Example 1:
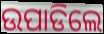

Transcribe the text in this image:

ଉପାଡିଲେ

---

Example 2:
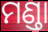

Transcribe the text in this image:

ମଣ୍ଡା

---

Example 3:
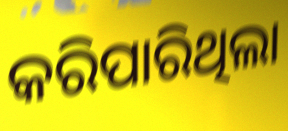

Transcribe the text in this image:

କରିପାରିଥିଲା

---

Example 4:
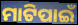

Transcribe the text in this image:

ମାଟିପାଇଁ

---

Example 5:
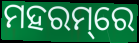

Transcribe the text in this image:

ମହରମ୍‌ରେ